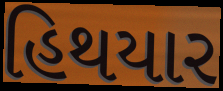
હિથયાર